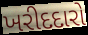
ખરીદદારો